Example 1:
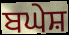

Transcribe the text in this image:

ਬਘੇਸ਼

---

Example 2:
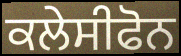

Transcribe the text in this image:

ਕਲੇਸੀਫੋਨ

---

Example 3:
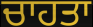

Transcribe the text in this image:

ਚਾਹਤਾ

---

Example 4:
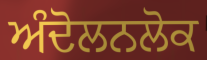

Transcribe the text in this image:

ਅੰਦੋਲਨਲੋਕ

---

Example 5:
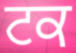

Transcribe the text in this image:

ਟਕ